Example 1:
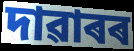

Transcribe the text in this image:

দাৱাৰৰ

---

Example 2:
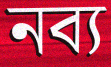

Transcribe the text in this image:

নব্য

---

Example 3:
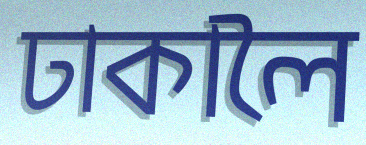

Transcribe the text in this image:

ঢাকালৈ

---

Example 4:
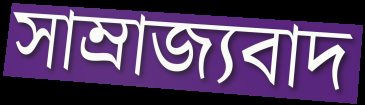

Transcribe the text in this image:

সাম্ৰাজ্যবাদ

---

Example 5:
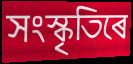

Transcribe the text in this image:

সংস্কৃতিৰে